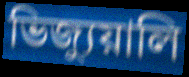
ভিজ্যুয়ালি